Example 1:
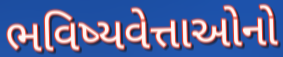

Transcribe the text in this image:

ભવિષ્યવેત્તાઓનો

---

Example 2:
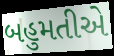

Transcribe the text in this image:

બહુમતીએ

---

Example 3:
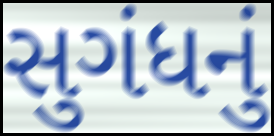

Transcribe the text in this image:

સુગંધનું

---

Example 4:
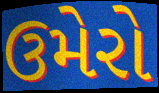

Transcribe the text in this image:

ઉમેરો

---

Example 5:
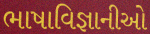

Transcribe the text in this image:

ભાષાવિજ્ઞાનીઓ